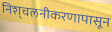
निश्चलनीकरणापासून